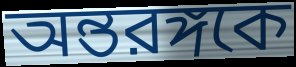
অন্তরঙ্গকে